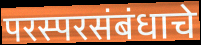
परस्परसंबंधाचे